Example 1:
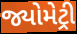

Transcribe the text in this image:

જ્યોમેટ્રી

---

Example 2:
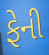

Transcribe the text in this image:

ફેની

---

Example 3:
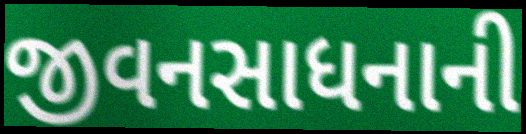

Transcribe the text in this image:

જીવનસાધનાની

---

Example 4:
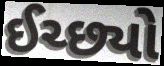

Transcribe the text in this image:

ઈચ્છ્યો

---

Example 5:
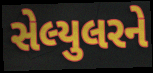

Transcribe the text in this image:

સેલ્યુલરને